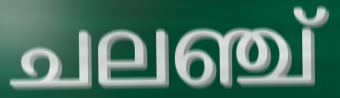
ചലഞ്ച്